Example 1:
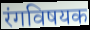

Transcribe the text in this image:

रंगविषयक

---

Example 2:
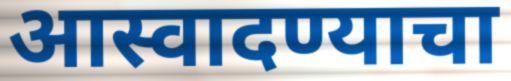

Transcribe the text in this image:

आस्वादण्याचा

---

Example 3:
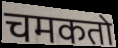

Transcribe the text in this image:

चमकतो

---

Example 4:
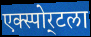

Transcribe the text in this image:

एक्स्पोर्टला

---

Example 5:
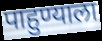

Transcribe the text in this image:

पाहुण्याला